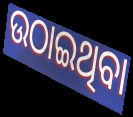
ଉଠାଇଥିବା